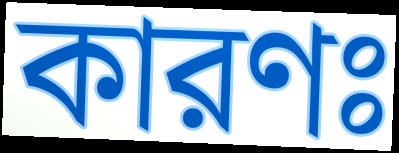
কারণঃ